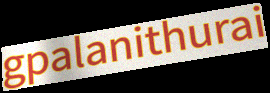
gpalanithurai